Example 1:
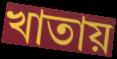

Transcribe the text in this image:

খাতায়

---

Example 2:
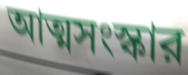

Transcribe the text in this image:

আত্মসংস্কার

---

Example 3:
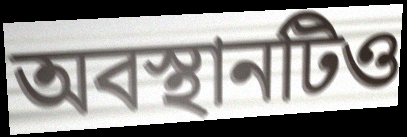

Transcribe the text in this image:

অবস্থানটিও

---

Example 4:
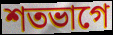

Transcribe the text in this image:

শতভাগে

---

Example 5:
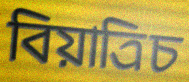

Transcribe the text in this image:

বিয়াত্রিচ